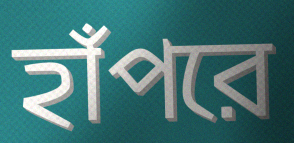
হাঁপরে